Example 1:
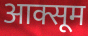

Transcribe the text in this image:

आक्सूम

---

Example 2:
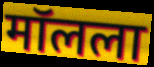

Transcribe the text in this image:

मॉलला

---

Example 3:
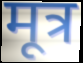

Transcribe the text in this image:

मूत्र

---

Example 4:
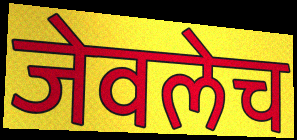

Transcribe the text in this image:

जेवलेच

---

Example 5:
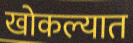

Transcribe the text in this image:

खोकल्यात